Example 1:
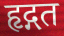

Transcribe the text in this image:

हृद्गत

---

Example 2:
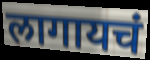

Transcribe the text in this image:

लागायचं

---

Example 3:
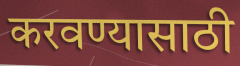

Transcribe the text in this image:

करवण्यासाठी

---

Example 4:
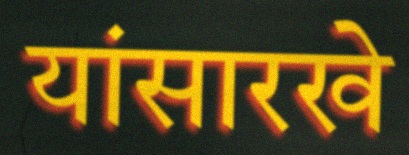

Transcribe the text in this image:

यांसारखे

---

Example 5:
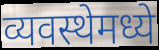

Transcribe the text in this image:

व्यवस्थेमध्ये